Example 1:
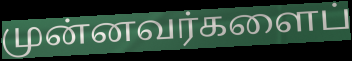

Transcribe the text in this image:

முன்னவர்களைப்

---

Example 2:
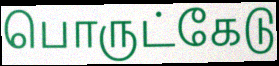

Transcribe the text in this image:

பொருட்கேடு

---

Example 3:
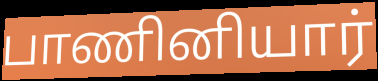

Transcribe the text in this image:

பாணினியார்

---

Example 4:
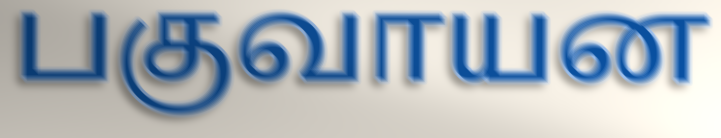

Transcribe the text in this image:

பகுவாயன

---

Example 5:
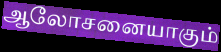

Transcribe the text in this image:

ஆலோசனையாகும்